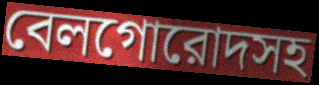
বেলগোরোদসহ